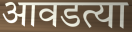
आवडत्या